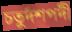
চতুর্দশপদী